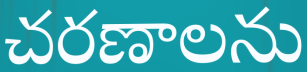
చరణాలను